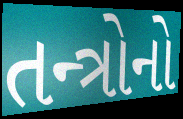
તન્ત્રોનો